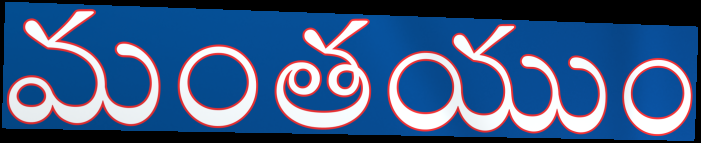
మంతయుం